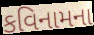
કવિનામના